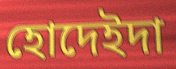
হোদেইদা